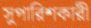
সুপারিশকারী